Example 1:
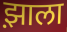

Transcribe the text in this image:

झ़ाला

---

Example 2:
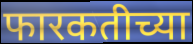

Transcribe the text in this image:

फारकतीच्या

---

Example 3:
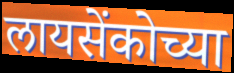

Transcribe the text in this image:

लायसेंकोच्या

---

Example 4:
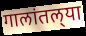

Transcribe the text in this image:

गालांतल्या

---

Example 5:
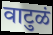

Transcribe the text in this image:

वाटुळं